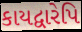
કાયદ્વારેપિ